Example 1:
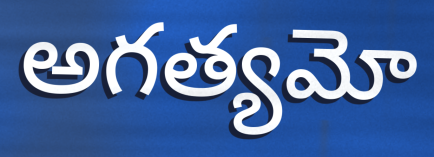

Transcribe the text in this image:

అగత్యమో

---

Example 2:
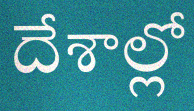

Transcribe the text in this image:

దేశాల్లో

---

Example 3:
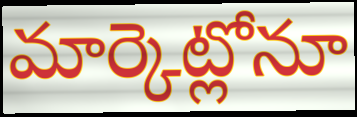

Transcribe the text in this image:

మార్కెట్లోనూ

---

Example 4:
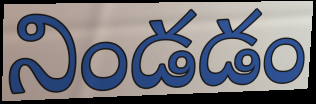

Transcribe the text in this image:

నిండడం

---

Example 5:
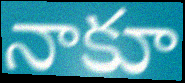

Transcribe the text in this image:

నాకూ